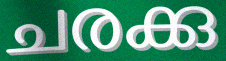
ചരക്കു